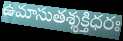
ఉమాసుతశ్శక్తిధరః